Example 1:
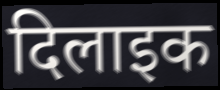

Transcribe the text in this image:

दिलाइक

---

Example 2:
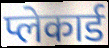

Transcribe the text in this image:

प्लेकार्ड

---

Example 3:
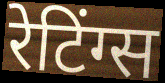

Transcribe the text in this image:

रेटिंग्स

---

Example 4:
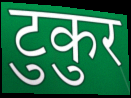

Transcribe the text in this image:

टुकुर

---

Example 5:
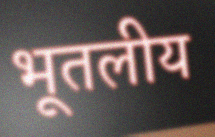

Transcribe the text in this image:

भूतलीय